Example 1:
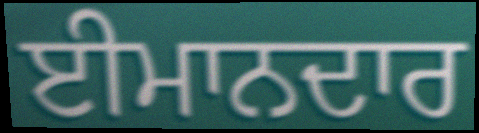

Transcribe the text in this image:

ਈਮਾਨਦਾਰ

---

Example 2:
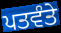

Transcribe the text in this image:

ਪਤਵੰਤੇ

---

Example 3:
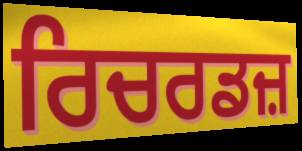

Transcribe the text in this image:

ਰਿਚਰਡਜ਼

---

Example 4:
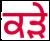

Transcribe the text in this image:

ਕੜੇ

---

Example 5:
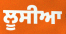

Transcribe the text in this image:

ਲੂਸੀਆ